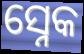
ସ୍ନେକ